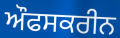
ਔਫਸਕਰੀਨ